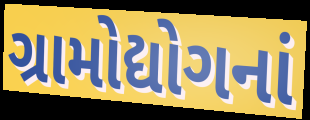
ગ્રામોદ્યોગનાં